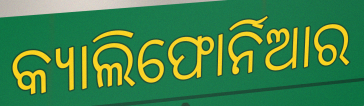
କ୍ୟାଲିଫୋର୍ନିଆର